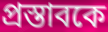
প্রস্তাবকে